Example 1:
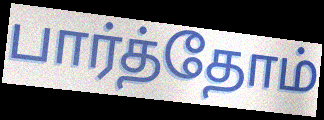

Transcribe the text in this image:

பார்த்தோம்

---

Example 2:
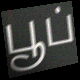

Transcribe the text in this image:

பூப்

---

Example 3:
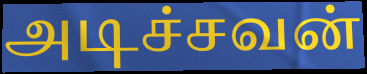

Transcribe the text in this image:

அடிச்சவன்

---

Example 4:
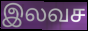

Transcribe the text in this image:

இலவச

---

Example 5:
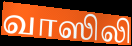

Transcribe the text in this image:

வாஸிலி